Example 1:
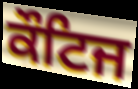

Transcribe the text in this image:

ਕੌਟਿਜ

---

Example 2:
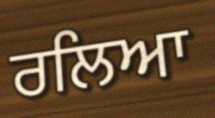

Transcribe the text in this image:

ਰਲਿਆ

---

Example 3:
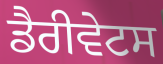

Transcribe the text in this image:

ਡੈਰੀਵੇਟਸ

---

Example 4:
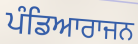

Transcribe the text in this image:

ਪੰਡਿਆਰਾਜਨ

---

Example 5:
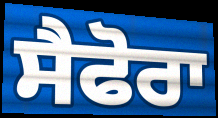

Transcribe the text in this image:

ਸੈਫੋਰਾ